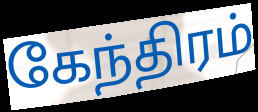
கேந்திரம்